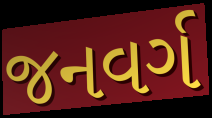
જનવર્ગ